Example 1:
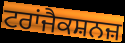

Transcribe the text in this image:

ਟਰਾਂਜੈਕਸ਼ਨਜ਼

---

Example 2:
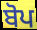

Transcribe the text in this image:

ਬੋਪ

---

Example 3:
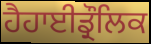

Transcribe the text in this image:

ਹੈਹਾਈਡ੍ਰੌਲਿਕ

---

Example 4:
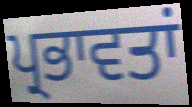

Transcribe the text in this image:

ਪ੍ਰਭਾਵਤਾਂ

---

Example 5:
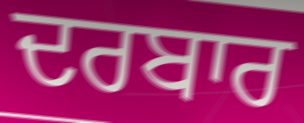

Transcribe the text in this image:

ਦਰਬਾਰ